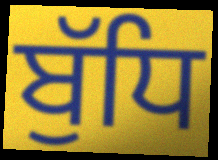
ਬੁੱਧਿ